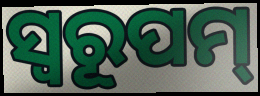
ସ୍ଵରୂପମ୍